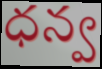
ధన్వ